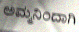
ಅಮ್ಮನಿಂದಾಗಿ